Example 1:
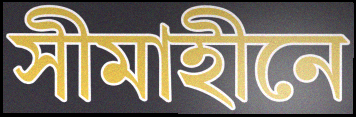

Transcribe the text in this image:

সীমাহীনে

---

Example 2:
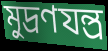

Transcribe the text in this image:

মুদ্রণযন্ত্র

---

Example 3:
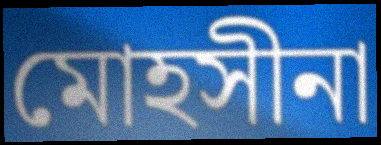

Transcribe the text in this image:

মোহসীনা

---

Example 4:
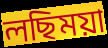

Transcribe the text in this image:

লছিময়া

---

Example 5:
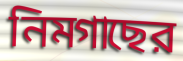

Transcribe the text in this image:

নিমগাছের